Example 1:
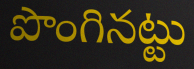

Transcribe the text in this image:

పొంగినట్టు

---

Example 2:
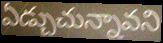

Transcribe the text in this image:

ఏడ్చుచున్నావని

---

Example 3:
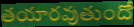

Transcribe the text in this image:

తయారవుతుందో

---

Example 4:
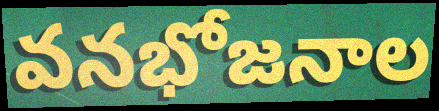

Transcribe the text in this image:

వనభోజనాల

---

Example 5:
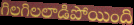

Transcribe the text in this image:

గిలగిలలాడిపోయింది